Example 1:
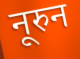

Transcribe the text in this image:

नूरुन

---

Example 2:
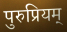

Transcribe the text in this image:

पुरुप्रियम्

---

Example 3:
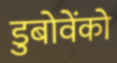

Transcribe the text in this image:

डुबोवेंको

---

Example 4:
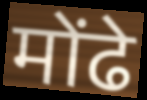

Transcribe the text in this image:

मोंढे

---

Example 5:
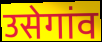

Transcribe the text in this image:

उसेगांव